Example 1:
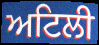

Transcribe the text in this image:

ਅਟਿਲੀ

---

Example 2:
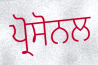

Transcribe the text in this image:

ਪ੍ਰੋਸੋਨਲ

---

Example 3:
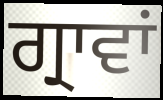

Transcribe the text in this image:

ਗ੍ਰਾਵਾਂ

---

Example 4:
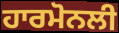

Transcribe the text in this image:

ਹਾਰਮੋਨਲੀ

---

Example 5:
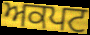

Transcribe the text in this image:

ਅਕਪਟ